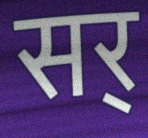
सर्